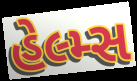
હેલ્મ્સ